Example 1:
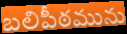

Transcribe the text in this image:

బలిపీఠమును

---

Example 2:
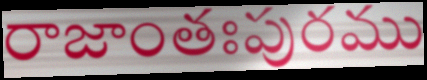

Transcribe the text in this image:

రాజాంతఃపురము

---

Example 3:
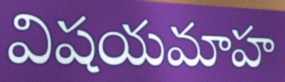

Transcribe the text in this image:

విషయమాహ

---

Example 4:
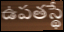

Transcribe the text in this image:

ఉపతస్థే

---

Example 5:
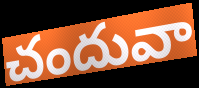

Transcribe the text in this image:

చందువా